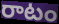
రాటం